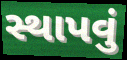
સ્થાપવું